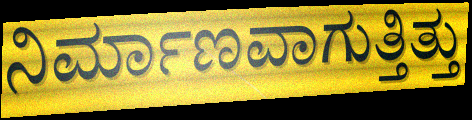
ನಿರ್ಮಾಣವಾಗುತ್ತಿತ್ತು